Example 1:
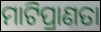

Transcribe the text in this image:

ମାଟିପ୍ରାଣତା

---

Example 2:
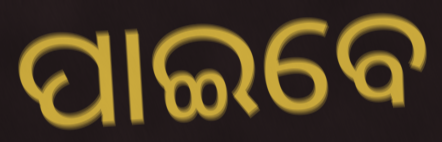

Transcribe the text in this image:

ପାଇବେ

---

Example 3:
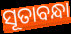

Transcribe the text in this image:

ସୂତାବନ୍ଧା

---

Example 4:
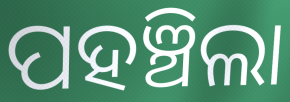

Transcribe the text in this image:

ପହଞ୍ଚିଲା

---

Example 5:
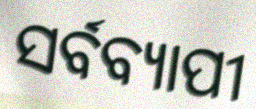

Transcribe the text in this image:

ସର୍ବବ୍ୟାପୀ